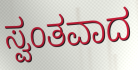
ಸ್ವಂತವಾದ